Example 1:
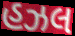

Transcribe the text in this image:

હઝલ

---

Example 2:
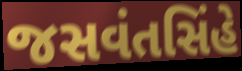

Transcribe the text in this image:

જસવંતસિંહે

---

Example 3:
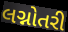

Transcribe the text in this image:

લગ્નોતરી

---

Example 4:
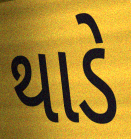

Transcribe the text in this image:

થાડે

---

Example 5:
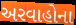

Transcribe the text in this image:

અરવાહોના